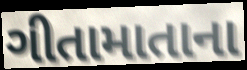
ગીતામાતાના